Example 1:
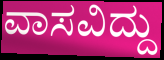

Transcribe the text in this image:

ವಾಸವಿದ್ದು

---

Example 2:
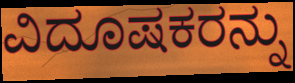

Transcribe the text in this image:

ವಿದೂಷಕರನ್ನು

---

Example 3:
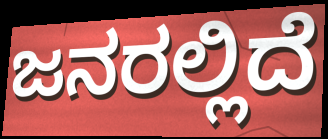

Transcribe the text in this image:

ಜನರಲ್ಲಿದೆ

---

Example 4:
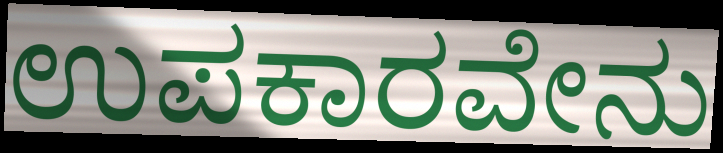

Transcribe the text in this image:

ಉಪಕಾರವೇನು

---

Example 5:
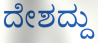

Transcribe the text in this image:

ದೇಶದ್ದು